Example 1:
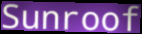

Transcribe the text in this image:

Sunroof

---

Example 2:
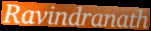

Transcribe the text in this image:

Ravindranath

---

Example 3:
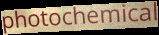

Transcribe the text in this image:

photochemical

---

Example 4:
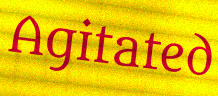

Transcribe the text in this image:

Agitated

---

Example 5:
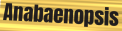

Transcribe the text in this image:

Anabaenopsis